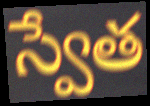
స్వేత